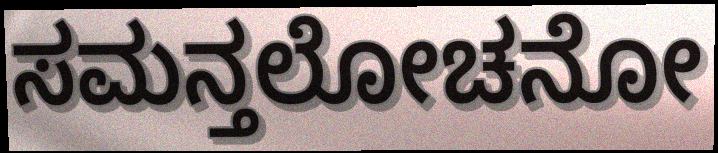
ಸಮನ್ತಲೋಚನೋ